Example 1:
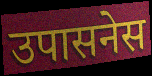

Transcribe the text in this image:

उपासनेस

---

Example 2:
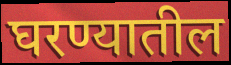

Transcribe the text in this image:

घरण्यातील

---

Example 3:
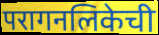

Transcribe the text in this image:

परागनलिकेची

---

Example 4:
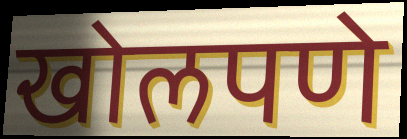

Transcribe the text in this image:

खोलपणे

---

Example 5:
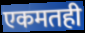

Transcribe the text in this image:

एकमतही